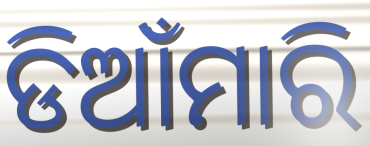
ଡିଆଁମାରି